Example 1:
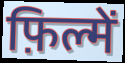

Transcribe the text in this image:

फ़िल्में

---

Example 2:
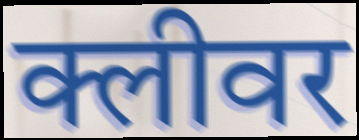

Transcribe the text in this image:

क्लीवर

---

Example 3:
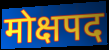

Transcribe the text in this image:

मोक्षपद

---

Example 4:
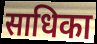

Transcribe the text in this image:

साधिका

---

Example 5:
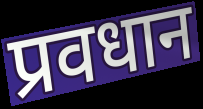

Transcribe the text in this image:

प्रवधान